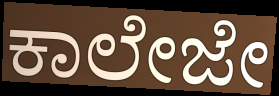
ಕಾಲೇಜೇ